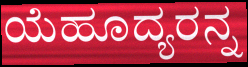
ಯೆಹೂದ್ಯರನ್ನ